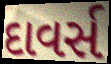
દાવર્સ